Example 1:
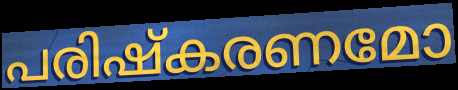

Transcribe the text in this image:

പരിഷ്കരണമോ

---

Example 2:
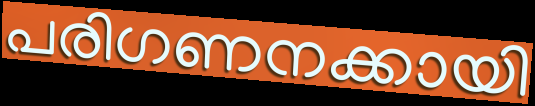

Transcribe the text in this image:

പരിഗണനക്കായി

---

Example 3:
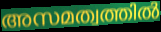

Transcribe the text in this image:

അസമത്വത്തിൽ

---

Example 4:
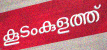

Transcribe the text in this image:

കൂടംകുളത്ത്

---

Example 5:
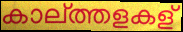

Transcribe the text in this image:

കാല്ത്തളകള്